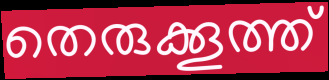
തെരുക്കൂത്ത്